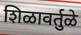
शिळावर्तुळे